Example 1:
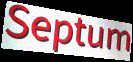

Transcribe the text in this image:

Septum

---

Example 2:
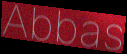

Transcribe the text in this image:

Abbas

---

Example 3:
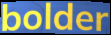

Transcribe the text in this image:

bolder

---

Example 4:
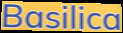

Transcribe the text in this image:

Basilica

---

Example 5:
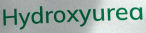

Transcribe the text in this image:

Hydroxyurea